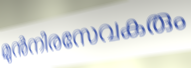
മുൻനിരസേവകരും